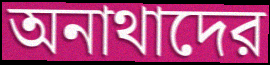
অনাথাদের